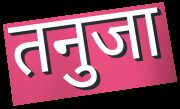
तनुजा